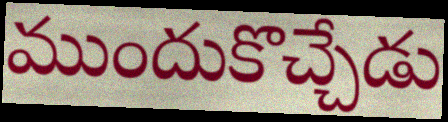
ముందుకొచ్చేడు